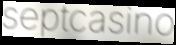
septcasino